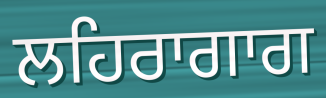
ਲਹਿਰਾਗਾਗ